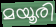
മയൂരി